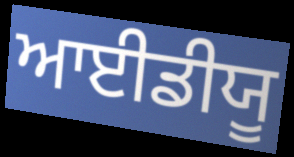
ਆਈਡੀਯੂ